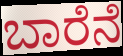
ಬಾರೆನೆ